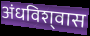
अंधविश्वास